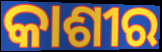
କାଶୀର